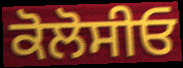
ਕੋਲੋਸੀਓ